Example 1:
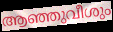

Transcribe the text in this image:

ആഞ്ഞുവീശും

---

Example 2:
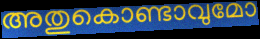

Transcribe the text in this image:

അതുകൊണ്ടാവുമോ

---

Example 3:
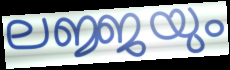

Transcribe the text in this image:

ലജ്ജയും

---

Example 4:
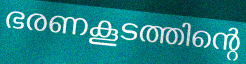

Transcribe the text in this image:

ഭരണകൂടത്തിന്റെ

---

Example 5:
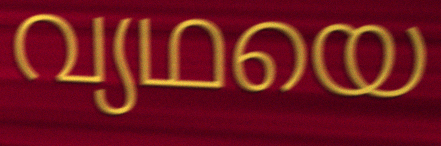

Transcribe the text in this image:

വ്യഥയെ